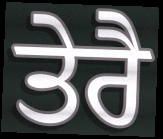
ਤੇਰੈ